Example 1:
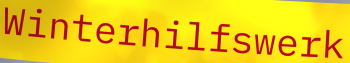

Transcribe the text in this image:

Winterhilfswerk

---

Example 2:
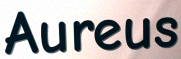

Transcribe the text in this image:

Aureus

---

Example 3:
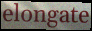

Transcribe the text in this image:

elongate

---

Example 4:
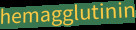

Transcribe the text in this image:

hemagglutinin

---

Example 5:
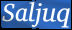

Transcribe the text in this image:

Saljuq